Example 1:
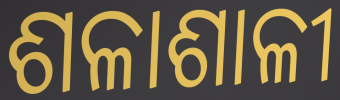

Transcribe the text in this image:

ଶଳାଶାଳୀ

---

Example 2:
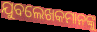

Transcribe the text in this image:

ଯୁବଲେଖକମାନଙ୍କୁ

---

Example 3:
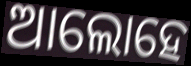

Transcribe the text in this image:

ଆଲୋହେ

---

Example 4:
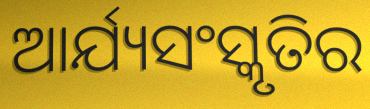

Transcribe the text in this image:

ଆର୍ଯ୍ୟସଂସ୍କୃତିର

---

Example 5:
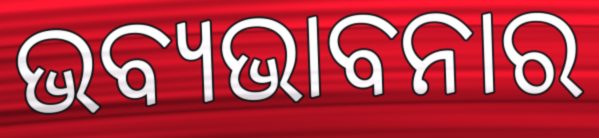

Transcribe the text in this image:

ଭବ୍ୟଭାବନାର